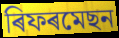
ৰিফৰমেছন